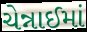
ચેન્નાઈમાં